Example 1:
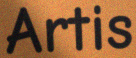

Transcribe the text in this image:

Artis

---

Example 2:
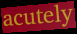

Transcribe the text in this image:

acutely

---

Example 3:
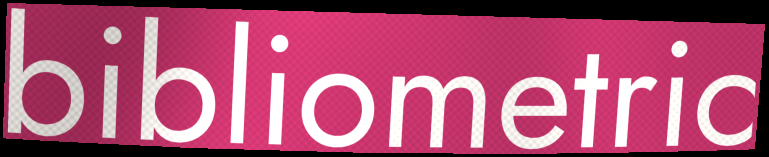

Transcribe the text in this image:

bibliometric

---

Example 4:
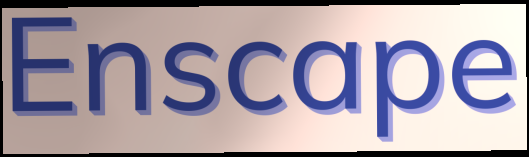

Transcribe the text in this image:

Enscape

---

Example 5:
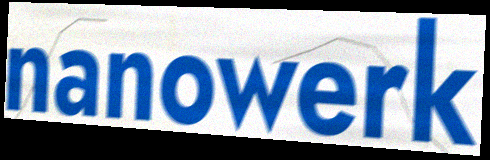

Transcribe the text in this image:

nanowerk